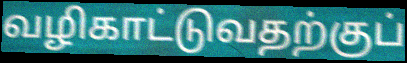
வழிகாட்டுவதற்குப்